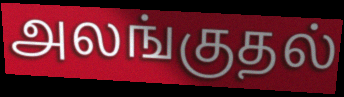
அலங்குதல்